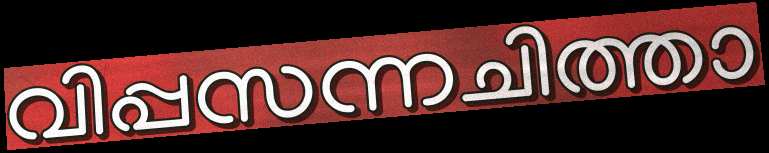
വിപ്പസന്നചിത്താ